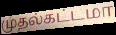
முதல்கட்டமா